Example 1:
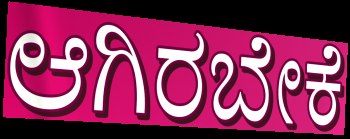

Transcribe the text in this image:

ಆಗಿರಬೇಕೆ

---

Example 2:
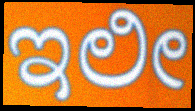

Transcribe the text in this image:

ಇಲೀ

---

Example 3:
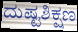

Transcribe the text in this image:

ದುಷ್ಟಶಿಕ್ಷಣ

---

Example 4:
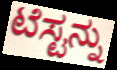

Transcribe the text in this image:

ಟೆಸ್ಟನ್ನು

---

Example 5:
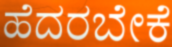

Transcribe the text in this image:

ಹೆದರಬೇಕೆ